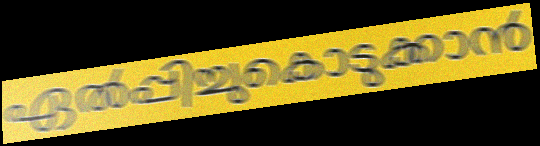
ഏൽപ്പിച്ചുകൊടുക്കാൻ